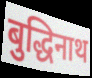
बुद्धिनाथ